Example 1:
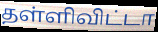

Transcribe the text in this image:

தள்ளிவிட்டா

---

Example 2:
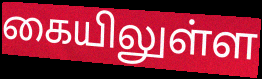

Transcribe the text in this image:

கையிலுள்ள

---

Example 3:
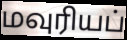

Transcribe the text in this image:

மவுரியப்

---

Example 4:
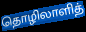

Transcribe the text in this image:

தொழிலாளித்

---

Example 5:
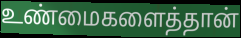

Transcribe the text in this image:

உண்மைகளைத்தான்